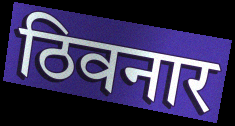
ठिवनार